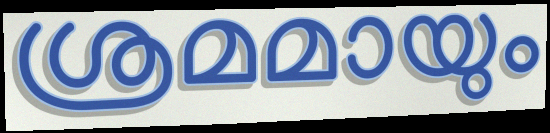
ശ്രമമായും